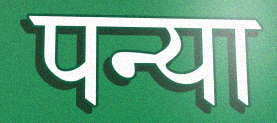
पन्या